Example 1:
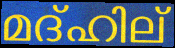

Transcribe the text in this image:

മദ്ഹില്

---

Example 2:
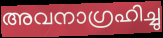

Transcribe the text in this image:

അവനാഗ്രഹിച്ചു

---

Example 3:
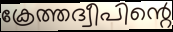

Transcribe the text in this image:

ക്രേത്തദ്വീപിന്റെ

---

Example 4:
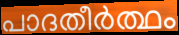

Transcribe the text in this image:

പാദതീർത്ഥം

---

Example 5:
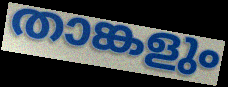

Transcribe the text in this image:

താങ്കളും